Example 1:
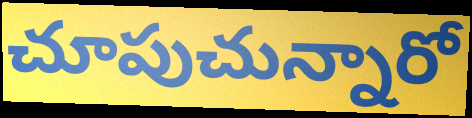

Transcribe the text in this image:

చూపుచున్నారో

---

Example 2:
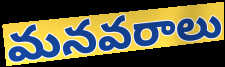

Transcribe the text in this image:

మనవరాలు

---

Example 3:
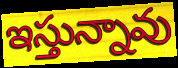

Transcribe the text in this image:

ఇస్తున్నావు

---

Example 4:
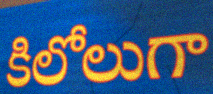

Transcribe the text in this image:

కిలోలుగా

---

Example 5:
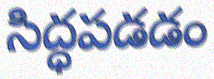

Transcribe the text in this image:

సిద్ధపడడం